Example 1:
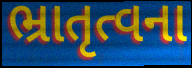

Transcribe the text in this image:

ભ્રાતૃત્વના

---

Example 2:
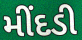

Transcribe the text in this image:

મીંદડી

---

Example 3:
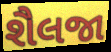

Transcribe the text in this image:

શૈલજા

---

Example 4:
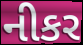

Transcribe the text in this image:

નીકર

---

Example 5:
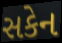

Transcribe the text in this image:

સકેન